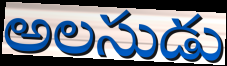
అలసుడు